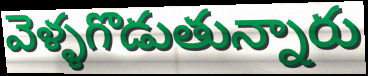
వెళ్ళగొడుతున్నారు